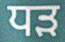
ਧੜ